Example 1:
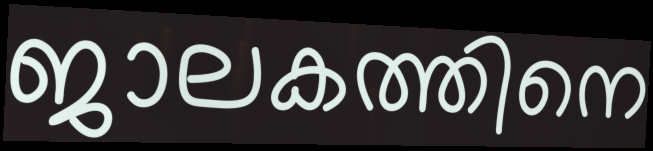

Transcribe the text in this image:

ജാലകത്തിനെ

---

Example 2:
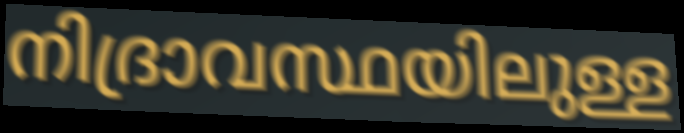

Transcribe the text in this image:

നിദ്രാവസ്ഥയിലുള്ള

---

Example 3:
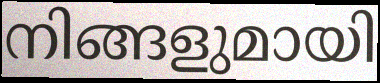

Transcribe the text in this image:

നിങ്ങളുമായി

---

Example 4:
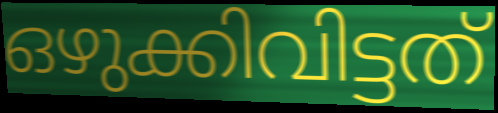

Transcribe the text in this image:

ഒഴുക്കിവിട്ടത്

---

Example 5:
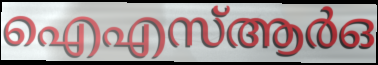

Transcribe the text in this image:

ഐഎസ്ആർഒ